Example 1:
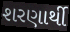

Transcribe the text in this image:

શરણાર્થી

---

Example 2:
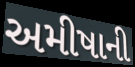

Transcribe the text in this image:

અમીષાની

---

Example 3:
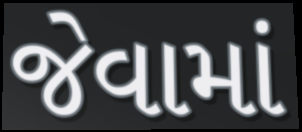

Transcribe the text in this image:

જેવામાં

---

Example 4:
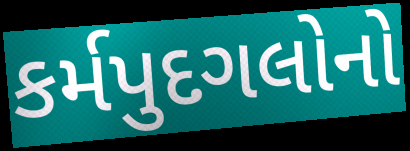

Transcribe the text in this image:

કર્મપુદગલોનો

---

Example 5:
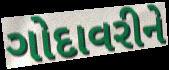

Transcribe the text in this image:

ગોદાવરીને